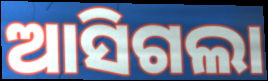
ଆସିଗଲା